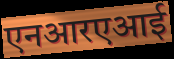
एनआरएआई